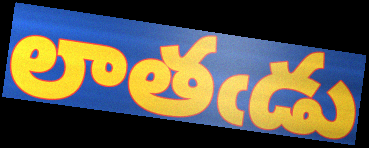
లాతఁడు